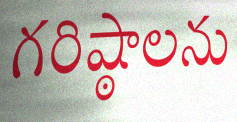
గరిష్ఠాలను